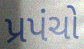
પ્રપંચો